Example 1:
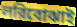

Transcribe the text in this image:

লরিবোঝাই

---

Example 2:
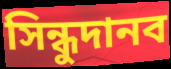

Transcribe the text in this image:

সিন্ধুদানব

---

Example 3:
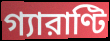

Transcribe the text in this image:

গ্যারাণ্টি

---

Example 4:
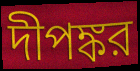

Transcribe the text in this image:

দীপঙ্কর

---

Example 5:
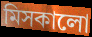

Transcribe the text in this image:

মিসকালো